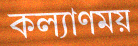
কল্যাণময়